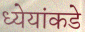
ध्येयांकडे